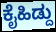
ಕೈಹಿಡ್ದು